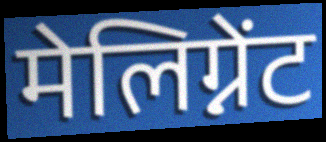
मेलिग्नेंट